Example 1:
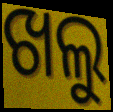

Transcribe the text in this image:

ଖଲୁ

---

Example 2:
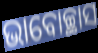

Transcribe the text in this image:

ଭାବୋଚ୍ଛାସ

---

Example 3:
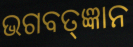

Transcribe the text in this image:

ଭଗବତ୍‌ଜ୍ଞାନ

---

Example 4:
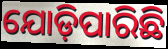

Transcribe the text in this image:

ଯୋଡ଼ିପାରିଛି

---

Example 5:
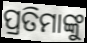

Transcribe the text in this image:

ପ୍ରତିମାଙ୍କୁ